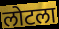
लोटला